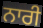
ਨਾਰੀ